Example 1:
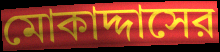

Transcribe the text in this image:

মোকাদ্দাসের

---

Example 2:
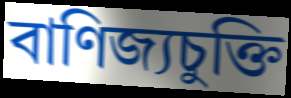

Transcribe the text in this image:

বাণিজ্যচুক্তি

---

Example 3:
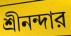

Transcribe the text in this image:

শ্রীনন্দার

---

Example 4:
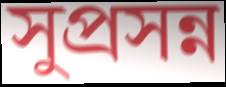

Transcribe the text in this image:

সুপ্রসন্ন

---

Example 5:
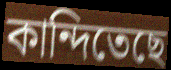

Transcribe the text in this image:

কান্দিতেছে